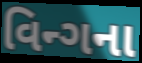
વિન્ગના